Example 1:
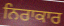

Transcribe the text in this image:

ਨਿਰਾਕਾਰ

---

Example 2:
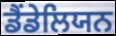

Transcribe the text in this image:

ਡੈਂਡੇਲਿਯਨ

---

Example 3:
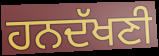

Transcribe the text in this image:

ਹਨਦੱਖਣੀ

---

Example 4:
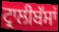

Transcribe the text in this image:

ਟ੍ਰਾਲੀਬੱਸਾਂ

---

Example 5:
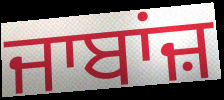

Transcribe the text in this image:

ਜਾਬਾਂਜ਼